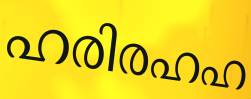
ഹരിരഹഹ